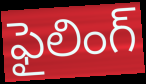
ఫైలింగ్